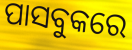
ପାସବୁକରେ